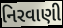
નિરવાણી